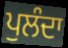
ਪੁਲੰਦਾ